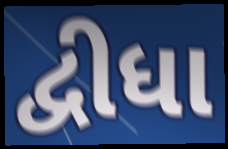
દ્વીધા